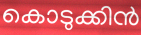
കൊടുക്കിൻ